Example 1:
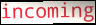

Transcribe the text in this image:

incoming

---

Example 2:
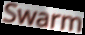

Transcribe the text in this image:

Swarm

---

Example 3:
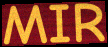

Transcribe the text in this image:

MIR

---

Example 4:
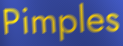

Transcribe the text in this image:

Pimples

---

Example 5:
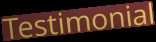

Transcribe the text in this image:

Testimonial